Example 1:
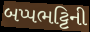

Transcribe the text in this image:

બપ્પભટ્ટિની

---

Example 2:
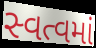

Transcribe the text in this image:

સ્વત્વમાં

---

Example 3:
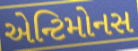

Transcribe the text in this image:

એન્ટિમોનસ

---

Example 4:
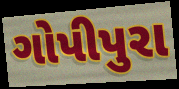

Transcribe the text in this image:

ગોપીપુરા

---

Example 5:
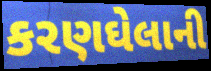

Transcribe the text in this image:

કરણઘેલાની